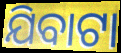
ଯିବାଟା